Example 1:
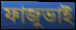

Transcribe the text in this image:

ফাজুভাই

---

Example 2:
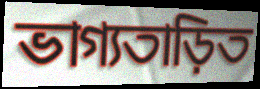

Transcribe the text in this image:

ভাগ্যতাড়িত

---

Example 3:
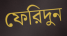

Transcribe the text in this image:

ফেরিদুন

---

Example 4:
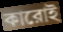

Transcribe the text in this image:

কারোই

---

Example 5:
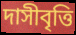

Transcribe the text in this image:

দাসীবৃত্তি